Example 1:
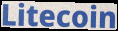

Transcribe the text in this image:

Litecoin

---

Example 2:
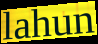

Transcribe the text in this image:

lahun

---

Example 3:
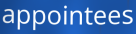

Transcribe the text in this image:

appointees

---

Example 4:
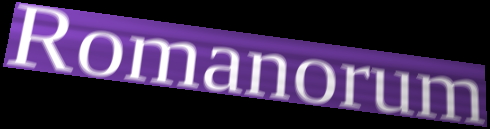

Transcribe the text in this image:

Romanorum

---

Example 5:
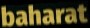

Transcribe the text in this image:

baharat